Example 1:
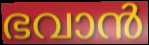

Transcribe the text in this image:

ഭവാൻ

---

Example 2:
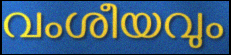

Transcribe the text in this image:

വംശീയവും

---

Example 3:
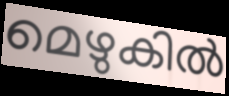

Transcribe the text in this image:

മെഴുകിൽ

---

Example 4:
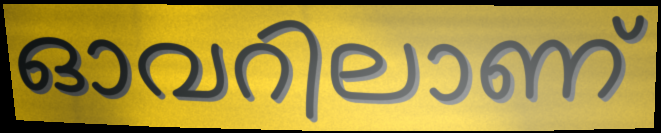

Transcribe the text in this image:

ഓവറിലാണ്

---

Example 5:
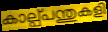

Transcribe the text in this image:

കാല്പ്പന്തുകളി